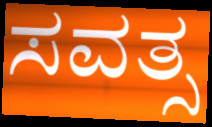
ಸವತ್ಸ